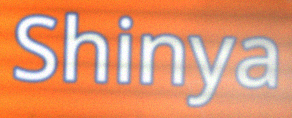
Shinya